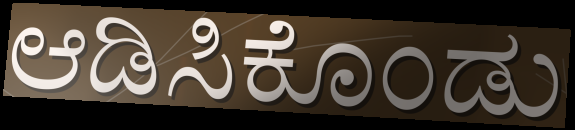
ಆಡಿಸಿಕೊಂಡು